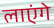
लाएंगे